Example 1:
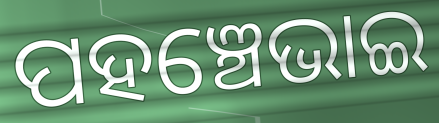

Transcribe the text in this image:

ପହଞ୍ଚେଭାଇ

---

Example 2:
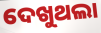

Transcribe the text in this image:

ଦେଖୁଥଲା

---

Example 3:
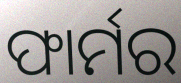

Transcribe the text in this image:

ଫାର୍ମର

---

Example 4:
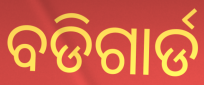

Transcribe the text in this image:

ବଡିଗାର୍ଡ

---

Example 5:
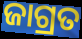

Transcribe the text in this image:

ଜାଗ୍ରତ